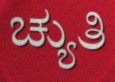
ಚ್ಯುತಿ